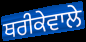
ਥਰੀਕੇਵਾਲੇ